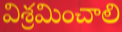
విశ్రమించాలి